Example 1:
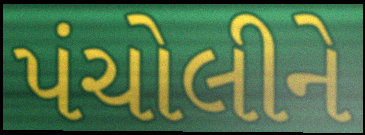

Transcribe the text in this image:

પંચોલીને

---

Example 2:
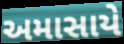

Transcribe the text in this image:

અમાસાયે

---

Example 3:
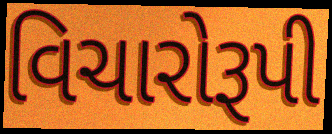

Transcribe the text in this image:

વિચારોરૂપી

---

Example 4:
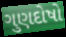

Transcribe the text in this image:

ગુણદોષો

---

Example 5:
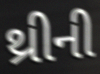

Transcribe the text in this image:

થ્રીની